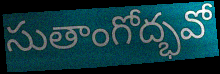
సుతాంగోద్భవో